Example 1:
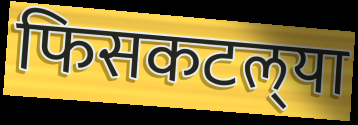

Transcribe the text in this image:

फिसकटल्या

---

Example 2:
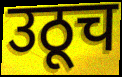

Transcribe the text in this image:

उठूच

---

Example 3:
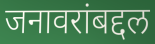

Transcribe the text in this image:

जनावरांबद्दल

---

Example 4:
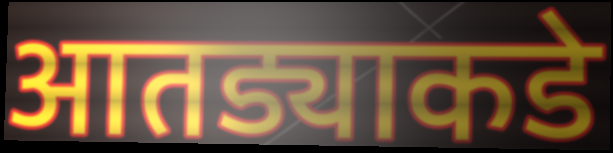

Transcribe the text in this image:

आतड्याकडे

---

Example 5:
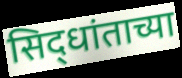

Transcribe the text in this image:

सिद्धांताच्या